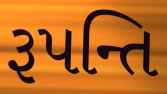
રૂપન્તિ